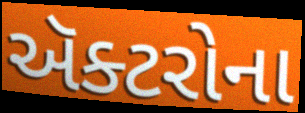
ઍક્ટરોના